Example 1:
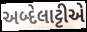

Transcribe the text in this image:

અબ્દેલાટ્ટીએ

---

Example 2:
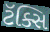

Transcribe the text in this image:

ટૅક્સિ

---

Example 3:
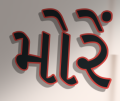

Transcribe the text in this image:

મોરેં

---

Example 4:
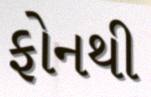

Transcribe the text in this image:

ફોનથી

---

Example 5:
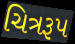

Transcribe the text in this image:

ચિત્રરૂપ